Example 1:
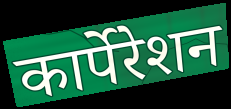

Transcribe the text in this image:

कार्पेरेशन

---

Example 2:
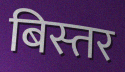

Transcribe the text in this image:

बिस्‍तर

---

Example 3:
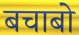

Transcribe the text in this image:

बचाबो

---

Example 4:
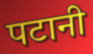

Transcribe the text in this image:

पटानी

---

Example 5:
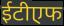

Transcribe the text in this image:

ईटीएफ